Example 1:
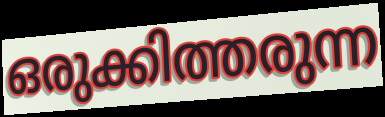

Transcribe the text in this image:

ഒരുക്കിത്തരുന്ന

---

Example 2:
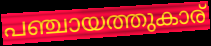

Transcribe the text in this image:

പഞ്ചായത്തുകാര്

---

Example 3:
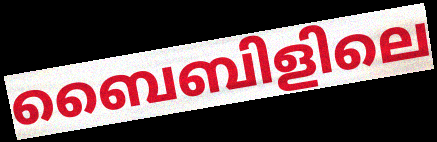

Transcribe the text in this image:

ബൈബിളിലെ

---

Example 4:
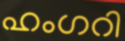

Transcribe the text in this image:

ഹംഗറി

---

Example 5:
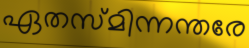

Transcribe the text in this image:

ഏതസ്മിന്നന്തരേ